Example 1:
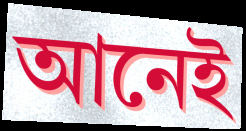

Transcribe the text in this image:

আনেই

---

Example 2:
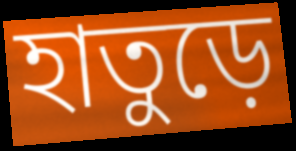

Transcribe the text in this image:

হাতুড়ে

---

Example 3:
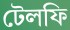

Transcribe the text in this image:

টেলফি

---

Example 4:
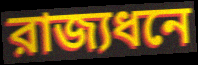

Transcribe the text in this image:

রাজ্যধনে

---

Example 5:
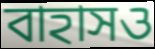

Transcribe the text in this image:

বাহাসও